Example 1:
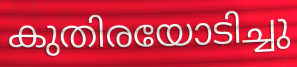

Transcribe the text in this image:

കുതിരയോടിച്ചു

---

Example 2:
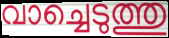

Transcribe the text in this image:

വാച്ചെടുത്തു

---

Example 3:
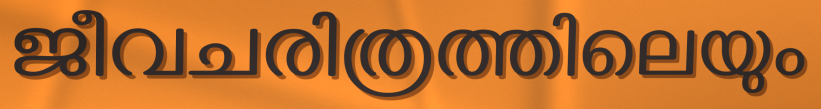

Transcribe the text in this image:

ജീവചരിത്രത്തിലെയും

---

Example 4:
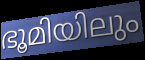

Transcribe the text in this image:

ഭൂമിയിലും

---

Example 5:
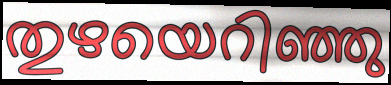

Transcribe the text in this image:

തുഴയെറിഞ്ഞു